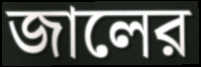
জালের